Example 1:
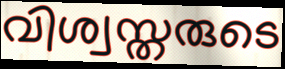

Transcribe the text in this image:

വിശ്വസ്തരുടെ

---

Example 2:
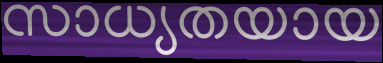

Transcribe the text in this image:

സാധ്യതയായ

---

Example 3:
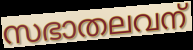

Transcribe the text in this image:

സഭാതലവന്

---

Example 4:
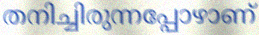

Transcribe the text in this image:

തനിച്ചിരുന്നപ്പോഴാണ്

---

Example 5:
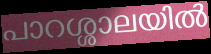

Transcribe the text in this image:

പാറശ്ശാലയിൽ